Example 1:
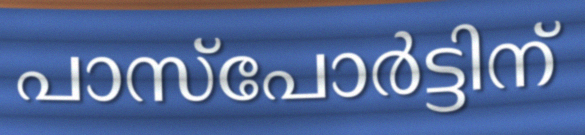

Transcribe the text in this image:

പാസ്പോർട്ടിന്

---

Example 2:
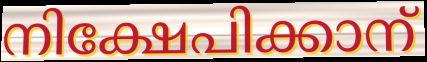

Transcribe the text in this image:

നിക്ഷേപിക്കാന്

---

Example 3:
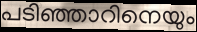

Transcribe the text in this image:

പടിഞ്ഞാറിനെയും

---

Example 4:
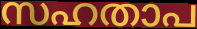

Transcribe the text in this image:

സഹതാപ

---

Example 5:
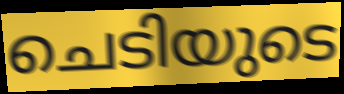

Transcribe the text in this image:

ചെടിയുടെ